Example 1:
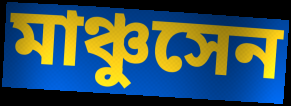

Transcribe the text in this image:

মাঞ্চুসেন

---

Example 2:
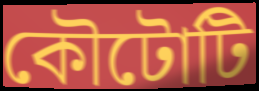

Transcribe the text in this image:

কৌটোটি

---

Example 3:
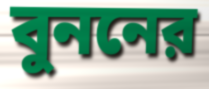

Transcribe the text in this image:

বুননের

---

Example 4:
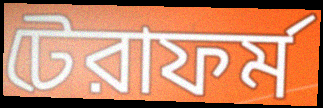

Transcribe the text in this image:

টেরাফর্ম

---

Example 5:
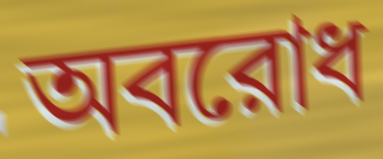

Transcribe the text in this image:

অবরোধ